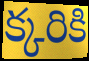
క్కరికి